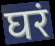
घरं